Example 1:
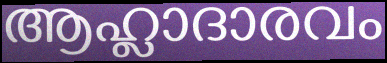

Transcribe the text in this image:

ആഹ്ലാദാരവം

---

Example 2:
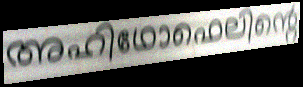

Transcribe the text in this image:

അഹിഥോഫെലിന്റെ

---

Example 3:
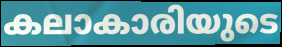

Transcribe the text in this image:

കലാകാരിയുടെ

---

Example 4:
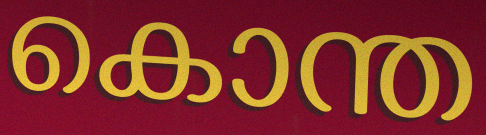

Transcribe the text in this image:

കൊന്ത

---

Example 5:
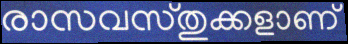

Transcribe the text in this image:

രാസവസ്തുക്കളാണ്